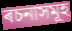
ৰচনাসমূহ